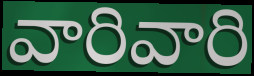
వారివారి